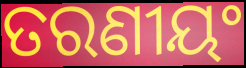
ତରଣୀୟଂ